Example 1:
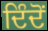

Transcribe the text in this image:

ਦਿੰਦੋਂ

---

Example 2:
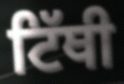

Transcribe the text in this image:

ਟਿੱਥੀ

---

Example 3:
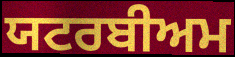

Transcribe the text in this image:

ਯਟਰਬੀਅਮ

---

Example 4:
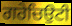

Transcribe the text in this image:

ਗਰੇਚਿਉਟੀ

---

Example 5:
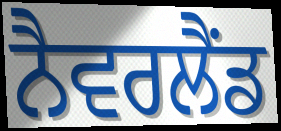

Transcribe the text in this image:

ਨੈਵਰਲੈਂਡ